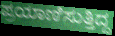
ಪ್ರಯಾಣಿಸುತ್ತಿದ್ದ